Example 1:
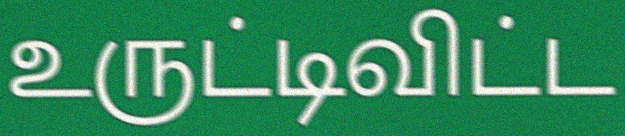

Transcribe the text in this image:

உருட்டிவிட்ட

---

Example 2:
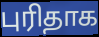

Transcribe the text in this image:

புரிதாக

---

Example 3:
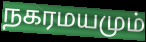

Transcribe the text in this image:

நகரமயமும்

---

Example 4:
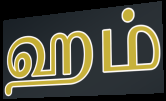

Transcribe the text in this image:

ஹம்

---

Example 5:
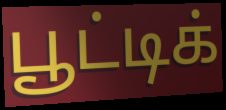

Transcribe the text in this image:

பூட்டிக்